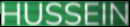
HUSSEIN